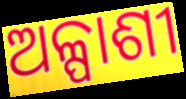
ଅଳ୍ପାଶୀ